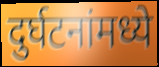
दुर्घटनांमध्ये